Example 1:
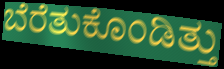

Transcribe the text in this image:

ಬೆರೆತುಕೊಂಡಿತ್ತು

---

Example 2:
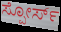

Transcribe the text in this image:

ಸ್ಪೋರ್ಸ್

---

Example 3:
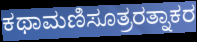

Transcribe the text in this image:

ಕಥಾಮಣಿಸೂತ್ರರತ್ನಾಕರ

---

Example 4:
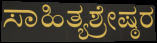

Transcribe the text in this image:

ಸಾಹಿತ್ಯಶ್ರೇಷ್ಠರ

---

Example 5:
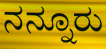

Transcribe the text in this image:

ನನ್ನೂರು